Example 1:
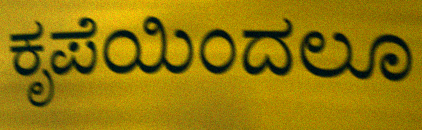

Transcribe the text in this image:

ಕೃಪೆಯಿಂದಲೂ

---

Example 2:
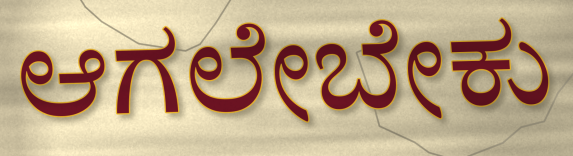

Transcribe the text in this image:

ಆಗಲೇಬೇಕು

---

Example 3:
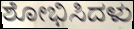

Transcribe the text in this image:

ಶೋಭಿಸಿದಳು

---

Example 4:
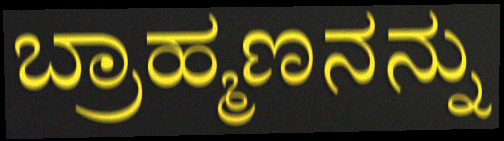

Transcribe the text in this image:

ಬ್ರಾಹ್ಮಣನನ್ನು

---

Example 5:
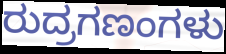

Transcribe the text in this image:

ರುದ್ರಗಣಂಗಳು